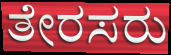
ತೇರಸರು